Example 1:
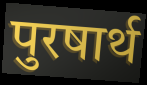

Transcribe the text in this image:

पुरषार्थ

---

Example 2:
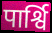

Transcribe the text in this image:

पार्श्वि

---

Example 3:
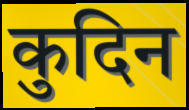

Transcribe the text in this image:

कुदिन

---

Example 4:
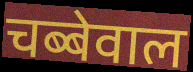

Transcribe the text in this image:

चब्बेवाल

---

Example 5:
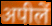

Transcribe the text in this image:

अपीलें